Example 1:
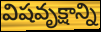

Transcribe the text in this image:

విషవృక్షాన్ని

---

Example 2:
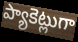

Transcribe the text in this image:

ప్యాకెట్లుగా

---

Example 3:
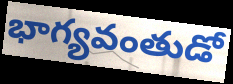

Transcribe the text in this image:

భాగ్యవంతుడో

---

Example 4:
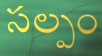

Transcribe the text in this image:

సల్పం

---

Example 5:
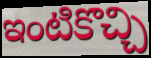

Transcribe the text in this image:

ఇంటికొచ్చి